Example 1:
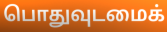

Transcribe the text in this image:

பொதுவுடமைக்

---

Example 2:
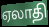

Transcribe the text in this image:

ஏலாதி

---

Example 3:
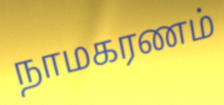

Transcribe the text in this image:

நாமகரணம்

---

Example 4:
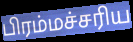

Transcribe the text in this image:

பிரம்மச்சரிய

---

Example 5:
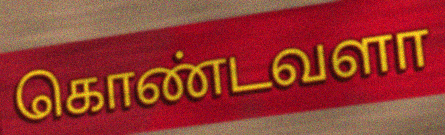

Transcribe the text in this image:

கொண்டவளா